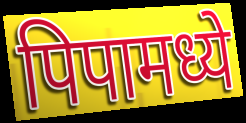
पिपामध्ये